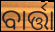
ବାର୍ତ୍ତା